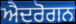
ਐਦਰੋਗਨ